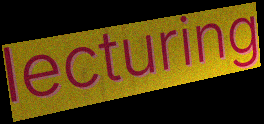
lecturing